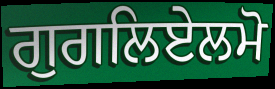
ਗੁਗਲਿਏਲਮੋ